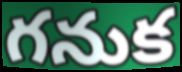
గనుక